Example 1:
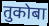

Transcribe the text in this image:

तुकोबा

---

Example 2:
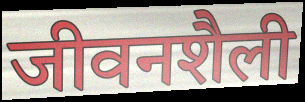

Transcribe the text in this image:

जीवनशैली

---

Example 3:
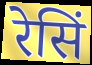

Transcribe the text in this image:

रेसिं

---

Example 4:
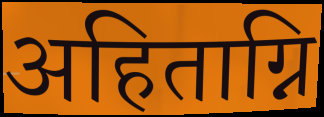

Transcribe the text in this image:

अहिताग्नि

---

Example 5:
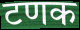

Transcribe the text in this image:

टणक